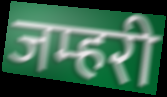
जम्हरी